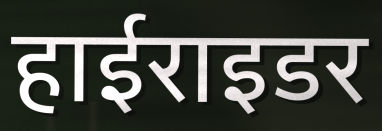
हाईराइडर